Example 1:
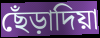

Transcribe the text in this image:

ছেঁড়াদিয়া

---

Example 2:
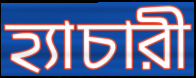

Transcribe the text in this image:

হ্যাচারী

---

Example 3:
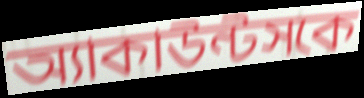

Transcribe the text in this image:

অ্যাকাউন্টসকে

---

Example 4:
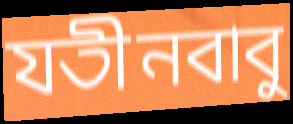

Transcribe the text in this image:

যতীনবাবু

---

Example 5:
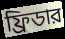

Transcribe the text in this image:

ফ্রিডার